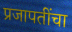
प्रजापतींचा